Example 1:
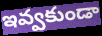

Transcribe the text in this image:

ఇవ్వకుండా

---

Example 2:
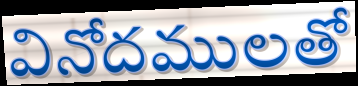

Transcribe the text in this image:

వినోదములతో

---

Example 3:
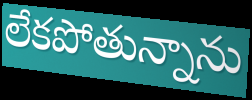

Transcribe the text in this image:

లేకపోతున్నాను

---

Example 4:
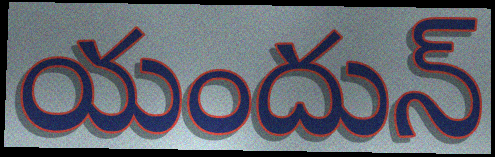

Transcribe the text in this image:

యందున్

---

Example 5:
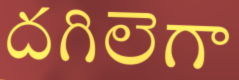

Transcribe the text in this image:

దగిలెగా